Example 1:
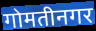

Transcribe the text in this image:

गोमतीनगर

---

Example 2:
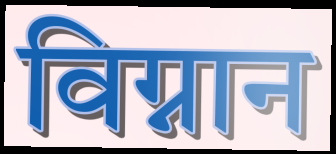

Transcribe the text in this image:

विग्नान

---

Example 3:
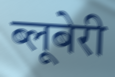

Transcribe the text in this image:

ब्लूबेरी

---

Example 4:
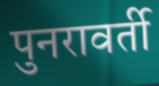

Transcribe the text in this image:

पुनरावर्ती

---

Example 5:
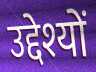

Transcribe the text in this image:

उद्देश्यों